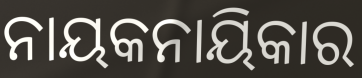
ନାୟକନାୟିକାର